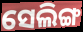
ସେଲିଙ୍ଗ